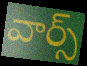
వార్స్